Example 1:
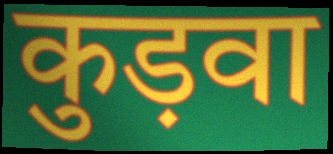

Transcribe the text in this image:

कुड़वा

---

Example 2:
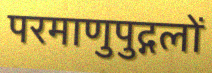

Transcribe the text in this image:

परमाणुपुद्गलों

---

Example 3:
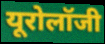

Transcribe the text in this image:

यूरोलॉजी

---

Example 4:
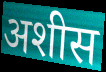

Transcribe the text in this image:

अशीस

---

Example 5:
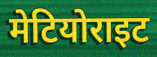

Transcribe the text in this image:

मेटियोराइट